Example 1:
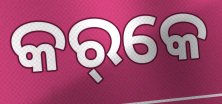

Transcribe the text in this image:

କର୍‌କେ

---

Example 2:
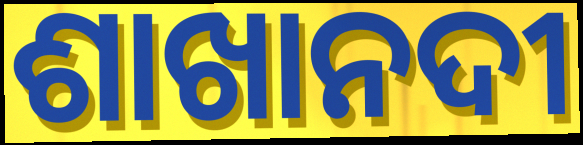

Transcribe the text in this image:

ଶାଖାନଦୀ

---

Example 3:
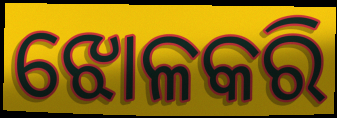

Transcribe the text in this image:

ଝୋଳକରି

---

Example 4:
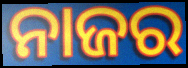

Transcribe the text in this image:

ନାଜର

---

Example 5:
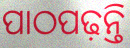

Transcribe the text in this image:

ପାଠପଢ଼ନ୍ତି